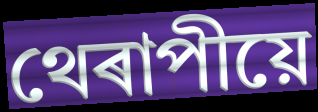
থেৰাপীয়ে